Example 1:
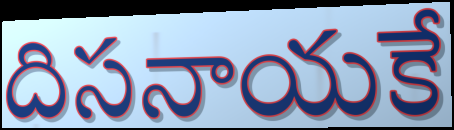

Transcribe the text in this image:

దిసనాయకే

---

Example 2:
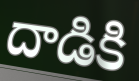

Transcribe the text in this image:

దాడికి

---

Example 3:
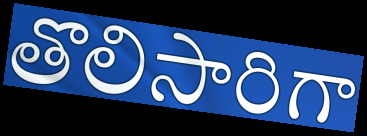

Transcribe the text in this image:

తొలిసారిగా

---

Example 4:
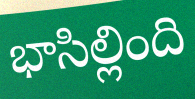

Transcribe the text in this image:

భాసిల్లింది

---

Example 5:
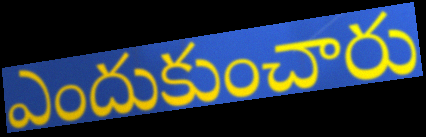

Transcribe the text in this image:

ఎందుకుంచారు